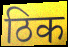
ठिक